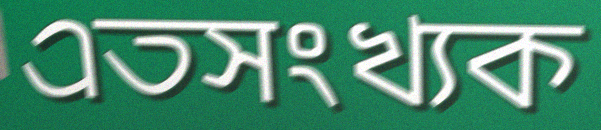
এতসংখ্যক